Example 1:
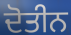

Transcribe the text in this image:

ਦੋਤੀਨ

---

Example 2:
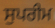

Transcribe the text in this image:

ਸੁਪਰੀਮ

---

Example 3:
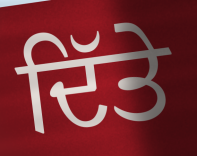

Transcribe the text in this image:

ਦਿੱਤੇ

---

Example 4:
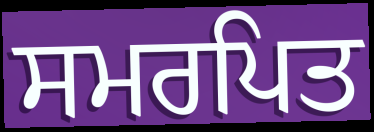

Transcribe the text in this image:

ਸਮਰਪਿਤ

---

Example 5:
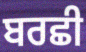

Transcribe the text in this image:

ਬਰਛੀ